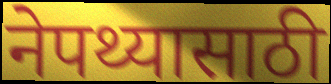
नेपथ्यासाठी